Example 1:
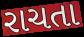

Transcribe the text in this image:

રાચતા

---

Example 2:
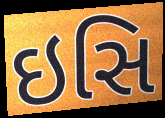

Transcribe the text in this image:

ઇસિ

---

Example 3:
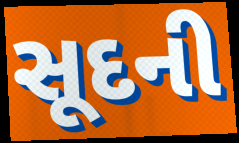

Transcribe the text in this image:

સૂદની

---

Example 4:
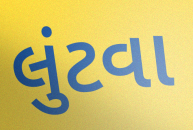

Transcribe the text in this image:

લુંટવા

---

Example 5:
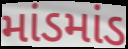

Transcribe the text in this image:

માંડમાંડ